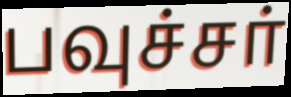
பவுச்சர்